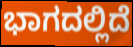
ಭಾಗದಲ್ಲಿದೆ